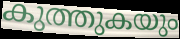
കുത്തുകയും